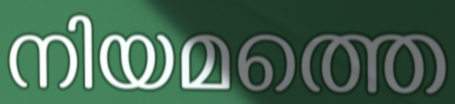
നിയമത്തെ